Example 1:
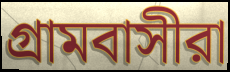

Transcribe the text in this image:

গ্রামবাসীরা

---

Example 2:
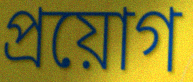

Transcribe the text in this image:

প্রয়োগ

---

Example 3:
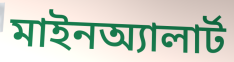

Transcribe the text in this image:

মাইনঅ্যালার্ট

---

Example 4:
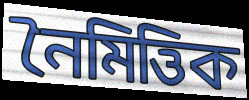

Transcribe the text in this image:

নৈমিত্তিক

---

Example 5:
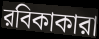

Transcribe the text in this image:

রবিকাকারা